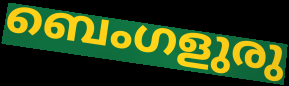
ബെംഗളുരു